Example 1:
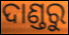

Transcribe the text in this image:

ଦାଣ୍ଡରୁ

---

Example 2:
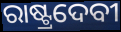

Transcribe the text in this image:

ରାଷ୍ଟ୍ରଦେବୀ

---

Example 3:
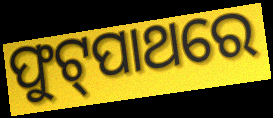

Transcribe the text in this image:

ଫୁଟ୍‍ପାଥରେ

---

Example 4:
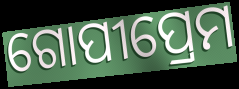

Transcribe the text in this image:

ଗୋପୀପ୍ରେମ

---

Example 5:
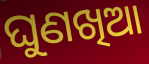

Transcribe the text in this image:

ଘୁଣଖିଆ